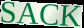
SACK